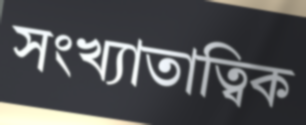
সংখ্যাতাত্বিক